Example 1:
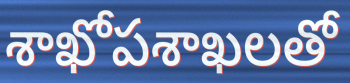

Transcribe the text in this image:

శాఖోపశాఖలతో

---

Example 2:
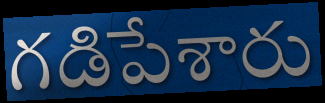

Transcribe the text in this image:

గడిపేశారు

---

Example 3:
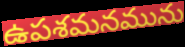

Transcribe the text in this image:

ఉపశమనమును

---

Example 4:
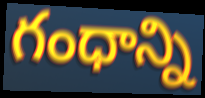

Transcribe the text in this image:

గంధాన్ని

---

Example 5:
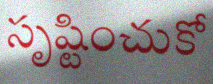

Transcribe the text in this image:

సృష్టించుకో